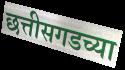
छत्तीसगडच्या